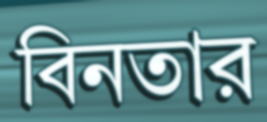
বিনতার